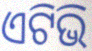
ଏଟିଭି